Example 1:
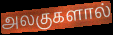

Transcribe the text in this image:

அலகுகளால்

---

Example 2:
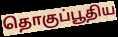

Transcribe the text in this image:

தொகுப்பூதிய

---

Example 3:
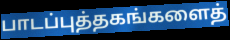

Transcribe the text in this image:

பாடப்புத்தகங்களைத்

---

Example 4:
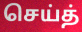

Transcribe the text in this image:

செய்த்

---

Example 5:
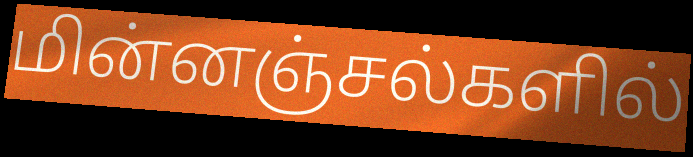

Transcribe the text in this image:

மின்னஞ்சல்களில்